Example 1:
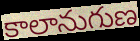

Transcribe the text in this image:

కాలానుగుణ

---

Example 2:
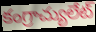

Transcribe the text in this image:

కంగ్రాచ్యులేట్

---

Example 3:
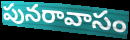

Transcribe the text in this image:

పునరావాసం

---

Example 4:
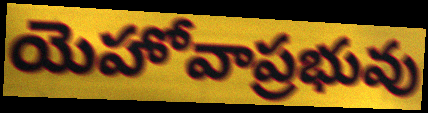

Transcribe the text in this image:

యెహోవాప్రభువు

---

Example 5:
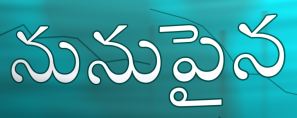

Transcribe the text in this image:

నునుపైన